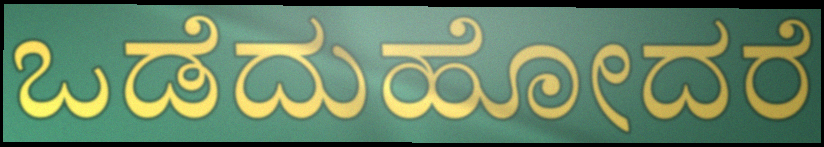
ಒಡೆದುಹೋದರೆ